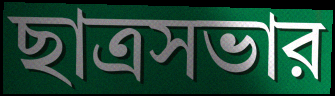
ছাত্রসভার